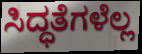
ಸಿದ್ಧತೆಗಳೆಲ್ಲ